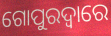
ଗୋପୁରଦ୍ଵାରେ